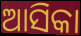
ଆସିକା